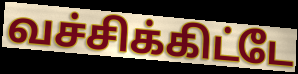
வச்சிக்கிட்டே